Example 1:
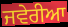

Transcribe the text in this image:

ਜਵੇਰੀਆ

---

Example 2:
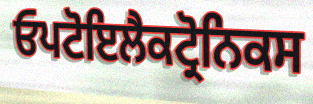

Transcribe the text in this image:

ਓਪਟੋਇਲੈਕਟ੍ਰੋਨਿਕਸ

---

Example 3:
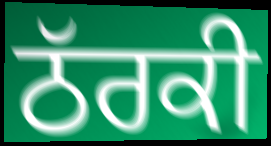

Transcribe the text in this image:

ਠੱਰਕੀ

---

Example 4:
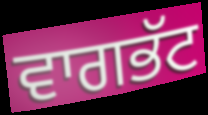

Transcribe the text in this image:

ਵਾਗਭੱਟ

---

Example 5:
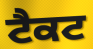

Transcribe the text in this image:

ਟੈਕਟ